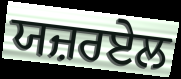
ਯਜ਼ਰਏਲ